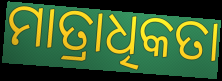
ମାତ୍ରାଧିକତା